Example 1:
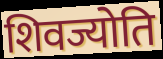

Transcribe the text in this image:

शिवज्योति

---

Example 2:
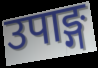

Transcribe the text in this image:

उपाङ्ग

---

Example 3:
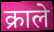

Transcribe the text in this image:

क्राले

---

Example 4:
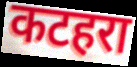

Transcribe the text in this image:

कटहरा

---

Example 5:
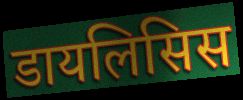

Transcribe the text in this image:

डायलिसिस